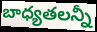
బాధ్యతలన్నీ